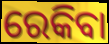
ରେକିବା